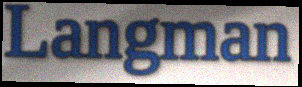
Langman